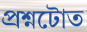
প্ৰশ্নটোত